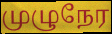
முழுநேர